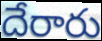
దేరారు